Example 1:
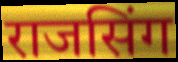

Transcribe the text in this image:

राजसिंग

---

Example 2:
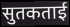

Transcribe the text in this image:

सुतकताई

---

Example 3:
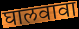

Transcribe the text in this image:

घालवावा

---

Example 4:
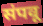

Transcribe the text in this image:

संपवू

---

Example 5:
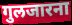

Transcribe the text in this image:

गुलजारना